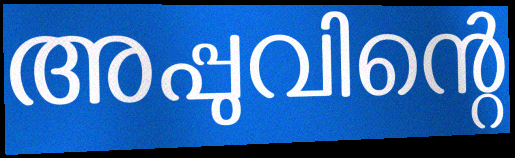
അപ്പുവിന്റെ